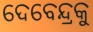
ଦେବେନ୍ଦ୍ରକୁ